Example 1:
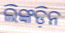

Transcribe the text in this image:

ଲିଙ୍କଡ଼ିନ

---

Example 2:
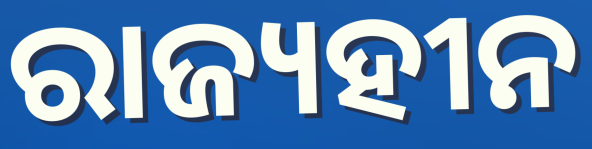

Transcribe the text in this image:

ରାଜ୍ୟହୀନ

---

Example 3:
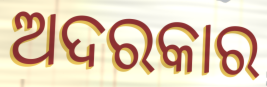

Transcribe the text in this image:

ଅଦରକାର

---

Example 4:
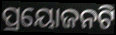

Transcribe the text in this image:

ପ୍ରୟୋଜନଟି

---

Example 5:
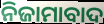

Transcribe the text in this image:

ନିଜାମାବାଦ